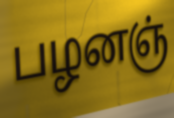
பழனஞ்